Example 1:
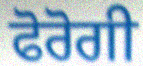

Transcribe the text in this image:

ਫੋਰੋਗੀ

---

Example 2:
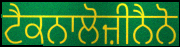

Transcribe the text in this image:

ਟੈਕਨਾਲੋਜ਼ੀਨੈਨੋ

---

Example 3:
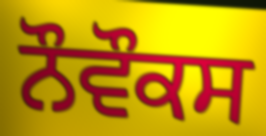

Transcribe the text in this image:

ਨੌਵੌਕਸ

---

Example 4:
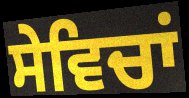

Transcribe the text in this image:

ਸੇਵਿਚਾਂ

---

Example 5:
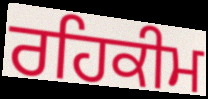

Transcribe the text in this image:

ਰਹਿਕੀਮ